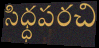
సిధ్ధపరచి